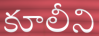
కూలీని